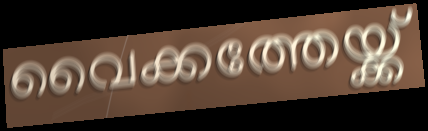
വൈക്കത്തേയ്ക്ക്